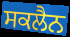
ਸਕਲੈਨ